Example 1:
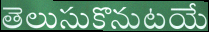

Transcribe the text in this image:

తెలుసుకొనుటయే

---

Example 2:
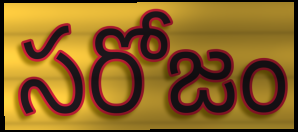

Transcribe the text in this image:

సరోజం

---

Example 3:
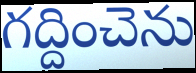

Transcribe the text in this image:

గద్దించెను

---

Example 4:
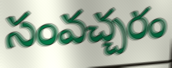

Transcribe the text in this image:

సంవచ్చరం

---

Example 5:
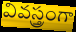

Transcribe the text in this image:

వివస్త్రంగా